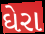
ઘેરા